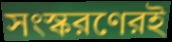
সংস্করণেরই